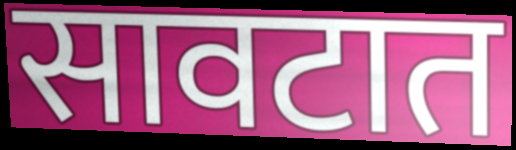
सावटात